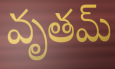
వృతమ్